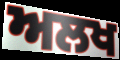
ਅਲਖ